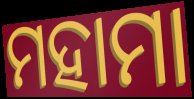
ମହାମା